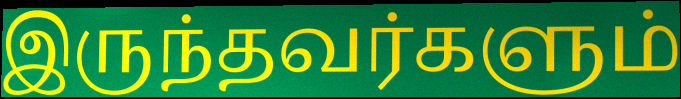
இருந்தவர்களும்